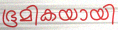
ഭൂമികയായി